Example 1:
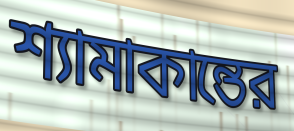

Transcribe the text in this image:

শ্যামাকান্তের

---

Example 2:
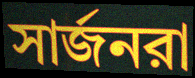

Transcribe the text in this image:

সার্জনরা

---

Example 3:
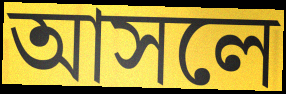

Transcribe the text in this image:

আসলে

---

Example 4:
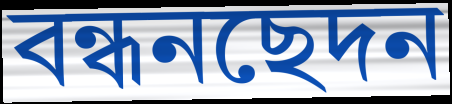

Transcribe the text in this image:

বন্ধনছেদন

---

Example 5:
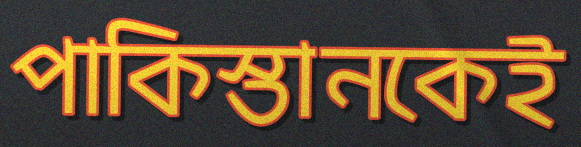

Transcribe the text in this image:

পাকিস্তানকেই